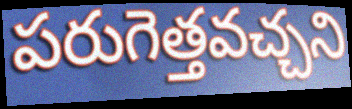
పరుగెత్తవచ్చని